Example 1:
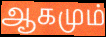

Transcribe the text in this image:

ஆகமும்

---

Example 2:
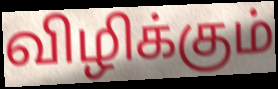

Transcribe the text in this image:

விழிக்கும்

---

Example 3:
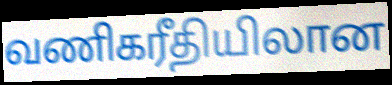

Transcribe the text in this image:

வணிகரீதியிலான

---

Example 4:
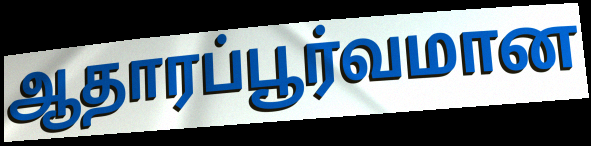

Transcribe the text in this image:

ஆதாரப்பூர்வமான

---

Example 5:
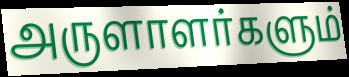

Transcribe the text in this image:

அருளாளர்களும்